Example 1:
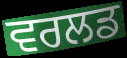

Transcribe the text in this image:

ਵਰਲਡ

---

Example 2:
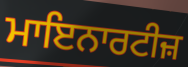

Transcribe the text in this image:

ਮਾਇਨਾਰਟੀਜ਼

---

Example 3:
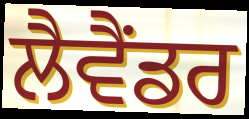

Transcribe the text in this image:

ਲੈਵੈਂਡਰ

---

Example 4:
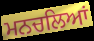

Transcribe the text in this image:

ਮਨਚਲਿਆਂ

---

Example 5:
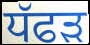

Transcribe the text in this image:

ਧੱਫੜ